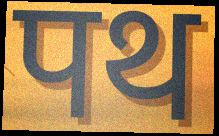
पथ